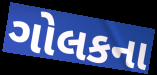
ગોલકના